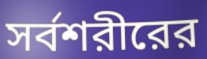
সর্বশরীরের